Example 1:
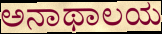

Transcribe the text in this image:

ಅನಾಥಾಲಯ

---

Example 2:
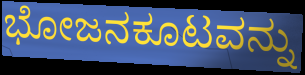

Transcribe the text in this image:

ಭೋಜನಕೂಟವನ್ನು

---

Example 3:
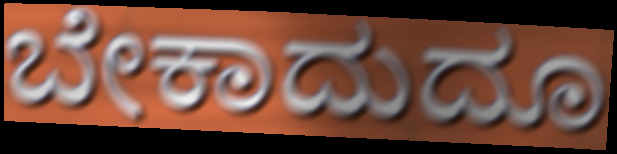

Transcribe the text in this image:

ಬೇಕಾದುದೂ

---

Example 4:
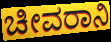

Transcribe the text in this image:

ಚೀವರಾನಿ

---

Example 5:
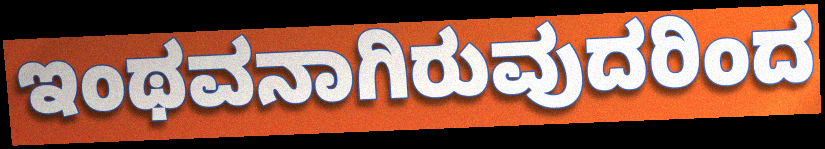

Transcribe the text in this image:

ಇಂಥವನಾಗಿರುವುದರಿಂದ